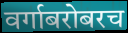
वर्गाबरोबरच